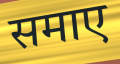
समाए